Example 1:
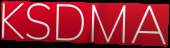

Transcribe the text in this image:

KSDMA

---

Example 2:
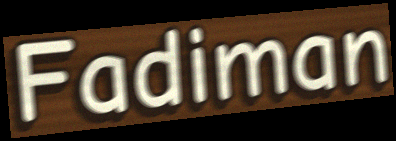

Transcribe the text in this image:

Fadiman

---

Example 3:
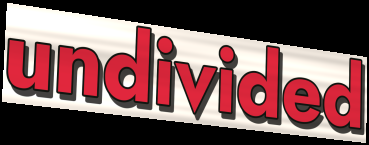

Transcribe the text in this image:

undivided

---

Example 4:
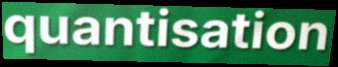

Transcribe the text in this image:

quantisation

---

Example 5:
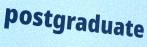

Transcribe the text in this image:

postgraduate